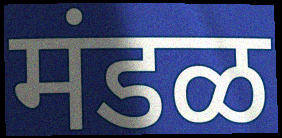
मंडळ